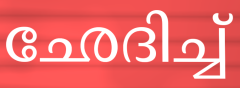
ഛേദിച്ച്